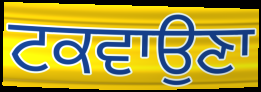
ਟਕਵਾਉਣਾ